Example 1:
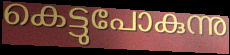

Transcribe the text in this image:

കെട്ടുപോകുന്നു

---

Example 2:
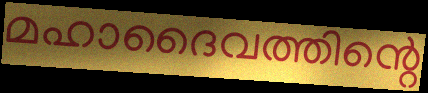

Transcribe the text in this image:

മഹാദൈവത്തിന്റെ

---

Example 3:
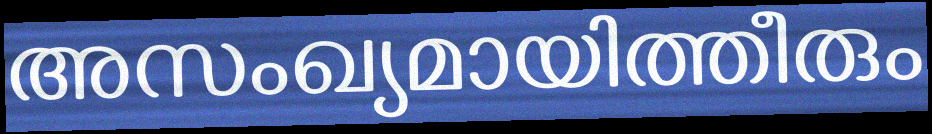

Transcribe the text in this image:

അസംഖ്യമായിത്തീരും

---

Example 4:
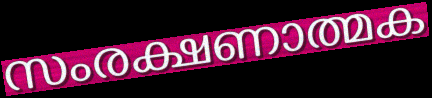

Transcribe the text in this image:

സംരക്ഷണാത്മക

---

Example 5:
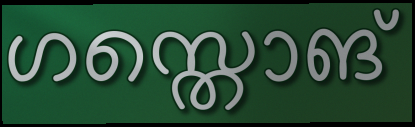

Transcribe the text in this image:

ഗസ്തൊങ്